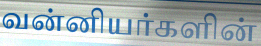
வன்னியர்களின்